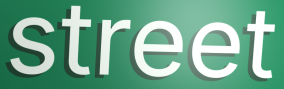
street